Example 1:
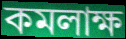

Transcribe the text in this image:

কমলাক্ষ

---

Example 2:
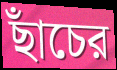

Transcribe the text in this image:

ছাঁচের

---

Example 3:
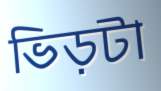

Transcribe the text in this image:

ভিড়টা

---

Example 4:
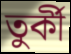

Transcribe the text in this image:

তুর্কী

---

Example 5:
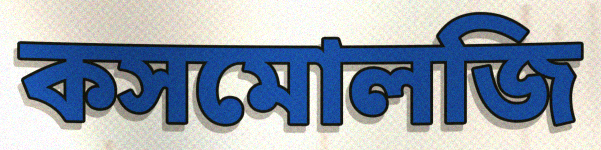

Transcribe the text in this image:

কসমোলজি